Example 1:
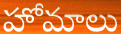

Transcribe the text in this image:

హోమాలు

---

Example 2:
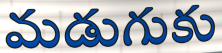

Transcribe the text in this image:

మడుగుకు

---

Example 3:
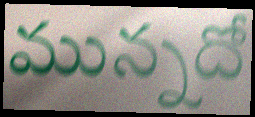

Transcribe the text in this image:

మున్నదో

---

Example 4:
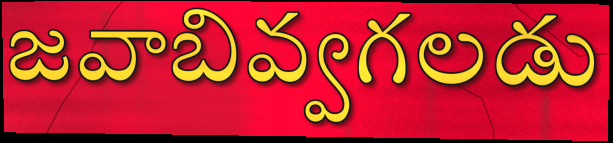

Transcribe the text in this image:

జవాబివ్వగలడు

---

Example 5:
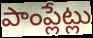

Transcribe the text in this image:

పాంప్లేట్లు